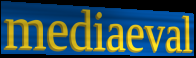
mediaeval